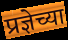
प्रज्ञेच्या